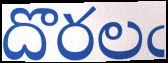
దొరలఁ